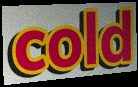
cold